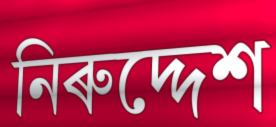
নিৰুদ্দেশ